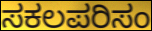
ಸಕಲಪರಿಸಂ